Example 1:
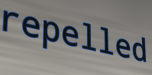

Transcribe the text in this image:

repelled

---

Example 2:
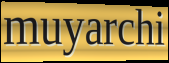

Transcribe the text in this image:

muyarchi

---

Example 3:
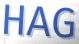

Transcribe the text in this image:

HAG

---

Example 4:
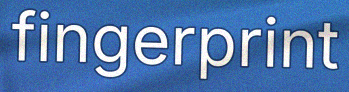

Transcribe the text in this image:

fingerprint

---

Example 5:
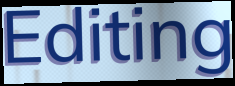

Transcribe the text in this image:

Editing